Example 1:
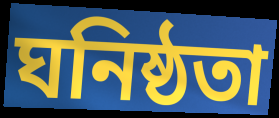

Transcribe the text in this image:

ঘনিষ্ঠতা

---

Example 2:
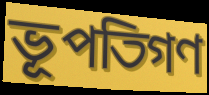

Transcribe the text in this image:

ভূপতিগণ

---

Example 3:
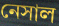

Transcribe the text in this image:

নেসাল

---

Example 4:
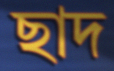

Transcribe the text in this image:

ছাদ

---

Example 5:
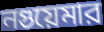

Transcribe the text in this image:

নগুয়েমার